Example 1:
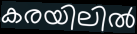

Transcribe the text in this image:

കരയിലിൽ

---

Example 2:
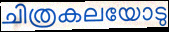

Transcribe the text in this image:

ചിത്രകലയോടു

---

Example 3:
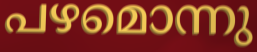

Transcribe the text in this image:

പഴമൊന്നു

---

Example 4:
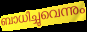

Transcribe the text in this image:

ബാധിച്ചുവെന്നും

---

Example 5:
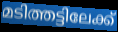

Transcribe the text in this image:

മടിത്തട്ടിലേക്ക്